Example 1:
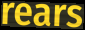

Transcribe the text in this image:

rears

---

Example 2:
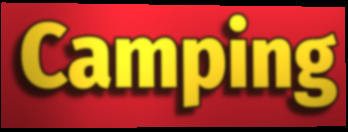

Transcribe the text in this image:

Camping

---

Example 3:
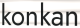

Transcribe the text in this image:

konkan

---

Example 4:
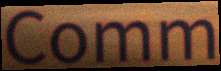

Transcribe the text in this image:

Comm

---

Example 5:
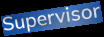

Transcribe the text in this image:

Supervisor